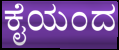
ಕೈಯಂದ